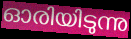
ഓരിയിടുന്നു